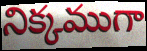
నిక్కముగా